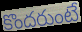
కొందరుంటే